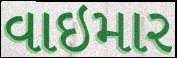
વાઇમાર